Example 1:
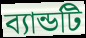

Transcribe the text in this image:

ব্যান্ডটি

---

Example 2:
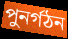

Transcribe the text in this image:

পুনর্গঠন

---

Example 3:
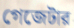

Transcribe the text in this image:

গেজেটার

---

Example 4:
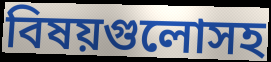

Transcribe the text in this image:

বিষয়গুলোসহ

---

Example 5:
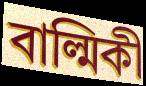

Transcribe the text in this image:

বাল্মিকী